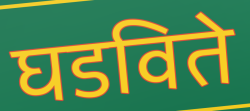
घडविते